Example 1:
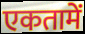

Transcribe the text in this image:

एकतामें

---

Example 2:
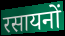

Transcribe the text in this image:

रसायनों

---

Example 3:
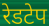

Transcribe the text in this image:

रेडटेप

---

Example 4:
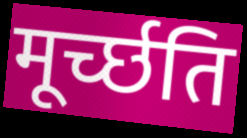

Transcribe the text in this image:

मूर्च्छति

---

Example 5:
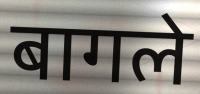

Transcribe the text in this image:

बागले